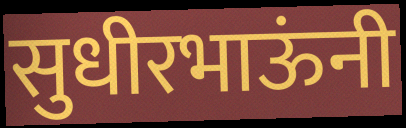
सुधीरभाऊंनी